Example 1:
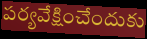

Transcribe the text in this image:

పర్యవేక్షించేందుకు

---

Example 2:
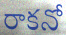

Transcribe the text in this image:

రాకనో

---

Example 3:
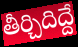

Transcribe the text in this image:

తీర్చిదిద్దే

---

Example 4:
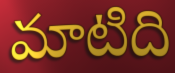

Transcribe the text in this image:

మాటిది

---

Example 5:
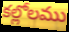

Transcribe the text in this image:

కల్లోలము